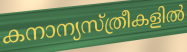
കനാന്യസ്ത്രീകളിൽ